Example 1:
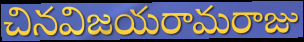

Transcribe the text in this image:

చినవిజయరామరాజు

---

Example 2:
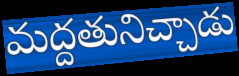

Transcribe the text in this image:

మద్దతునిచ్చాడు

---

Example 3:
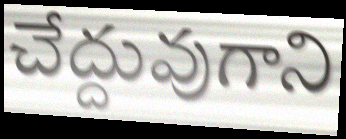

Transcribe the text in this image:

చేద్దువుగాని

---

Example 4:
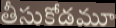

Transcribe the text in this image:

తీసుకోడమూ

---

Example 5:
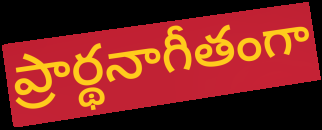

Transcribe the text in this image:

ప్రార్థనాగీతంగా